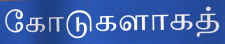
கோடுகளாகத்